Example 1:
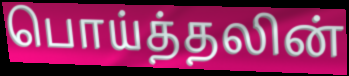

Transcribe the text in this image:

பொய்த்தலின்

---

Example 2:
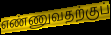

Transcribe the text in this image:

எண்ணுவதற்குப்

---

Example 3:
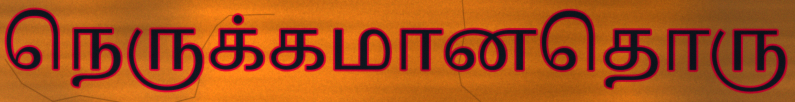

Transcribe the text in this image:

நெருக்கமானதொரு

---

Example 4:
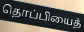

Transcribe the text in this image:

தொப்பியைத்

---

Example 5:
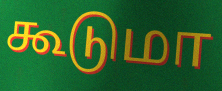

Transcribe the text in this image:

கூடுமா